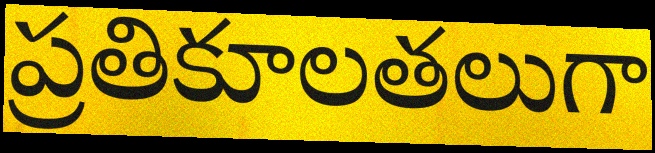
ప్రతికూలతలుగా